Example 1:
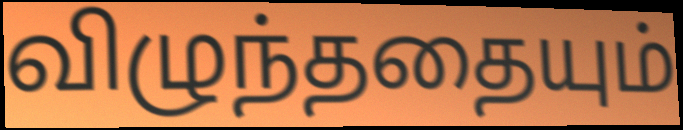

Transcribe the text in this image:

விழுந்ததையும்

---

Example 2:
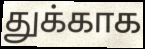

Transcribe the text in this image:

துக்காக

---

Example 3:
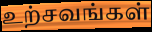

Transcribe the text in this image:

உற்சவங்கள்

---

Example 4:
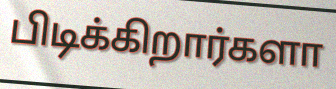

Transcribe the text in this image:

பிடிக்கிறார்களா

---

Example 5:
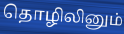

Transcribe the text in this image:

தொழிலினும்